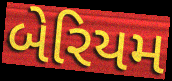
બેરિયમ